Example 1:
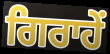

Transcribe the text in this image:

ਗਿਰਾਹੇਂ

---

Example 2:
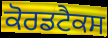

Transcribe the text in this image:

ਕੋਰਡਟੈਕਸ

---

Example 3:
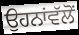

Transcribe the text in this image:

ਉਹਨਾਂਵੱਲੋਂ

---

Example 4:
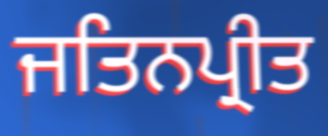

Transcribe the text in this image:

ਜਤਿਨਪ੍ਰੀਤ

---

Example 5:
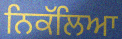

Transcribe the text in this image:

ਨਿਕੱਲਿਆ